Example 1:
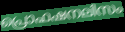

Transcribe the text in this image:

പ്രൊഫഷനലിസം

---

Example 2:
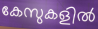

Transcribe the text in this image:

കേസുകളിൽ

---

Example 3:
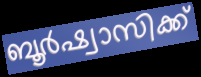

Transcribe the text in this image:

ബൂർഷ്വാസിക്ക്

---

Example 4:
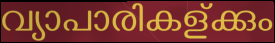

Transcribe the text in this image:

വ്യാപാരികള്ക്കും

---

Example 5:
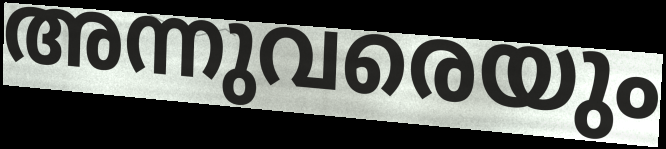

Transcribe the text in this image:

അന്നുവരെയും